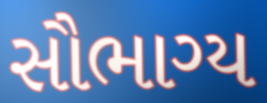
સૌભાગ્ય